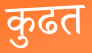
कुढत